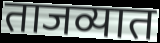
ताजव्यात